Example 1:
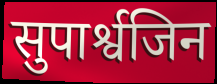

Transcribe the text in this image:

सुपार्श्वजिन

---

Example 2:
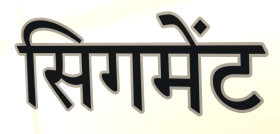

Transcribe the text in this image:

सिगमेंट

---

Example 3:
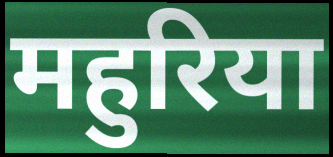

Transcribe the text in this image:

महुरिया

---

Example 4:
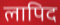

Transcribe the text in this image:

लापिद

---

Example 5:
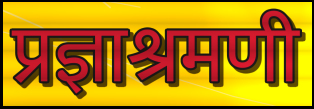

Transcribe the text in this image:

प्रज्ञाश्रमणी